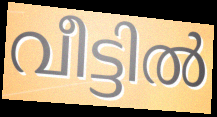
വീട്ടിൽ